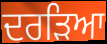
ਦਰੜਿਆ